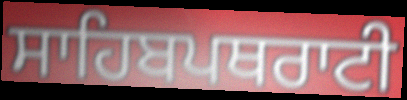
ਸਾਹਿਬਪਥਰਾਟੀ